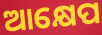
ଆକ୍ଷେପ